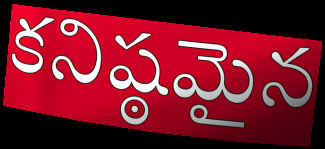
కనిష్ఠమైన